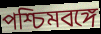
পশ্চিমবঙ্গে